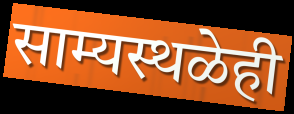
साम्यस्थळेही